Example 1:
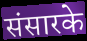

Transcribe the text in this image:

संसारके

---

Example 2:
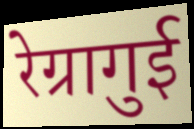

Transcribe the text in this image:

रेग्रागुई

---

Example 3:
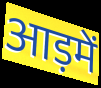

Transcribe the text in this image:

आड़में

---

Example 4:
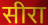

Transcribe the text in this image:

सीरा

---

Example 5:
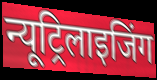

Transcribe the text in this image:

न्यूट्रिलाइजिंग